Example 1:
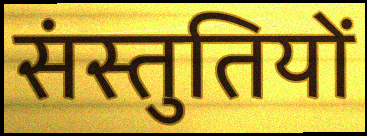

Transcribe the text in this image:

संस्तुतियों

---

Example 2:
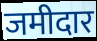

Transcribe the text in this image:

जमीदार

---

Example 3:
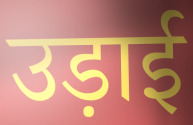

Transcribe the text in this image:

उड़ाई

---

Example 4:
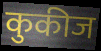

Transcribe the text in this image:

कुकीज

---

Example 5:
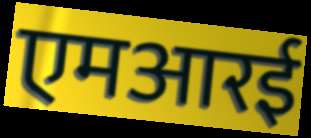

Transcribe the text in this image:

एमआरई